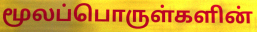
மூலப்பொருள்களின்